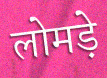
लोमड़े